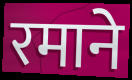
रमाने